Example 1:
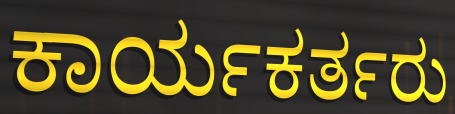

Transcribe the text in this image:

ಕಾರ್ಯಕರ್ತರು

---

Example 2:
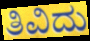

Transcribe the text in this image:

ತಿವಿದು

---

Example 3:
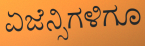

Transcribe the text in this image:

ಏಜೆನ್ಸಿಗಳಿಗೂ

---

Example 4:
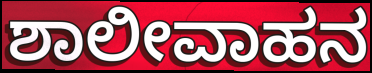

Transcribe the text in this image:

ಶಾಲೀವಾಹನ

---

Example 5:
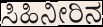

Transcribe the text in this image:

ಸಿಹಿನೀರಿನ